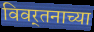
विवर्तनाच्या